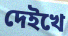
দেইখে